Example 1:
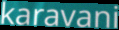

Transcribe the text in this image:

karavani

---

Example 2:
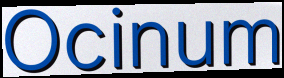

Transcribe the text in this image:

Ocinum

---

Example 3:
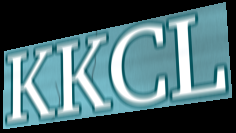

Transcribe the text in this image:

KKCL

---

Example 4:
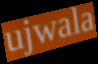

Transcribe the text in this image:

ujwala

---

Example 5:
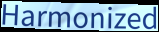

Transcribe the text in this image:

Harmonized